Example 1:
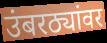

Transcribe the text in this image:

उंबरठ्यांवर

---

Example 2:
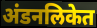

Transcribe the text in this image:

अंडनलिकेत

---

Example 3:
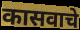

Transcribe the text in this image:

कासवाचे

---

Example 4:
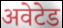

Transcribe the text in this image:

अवेटेड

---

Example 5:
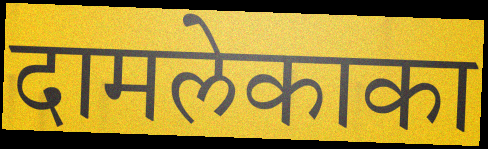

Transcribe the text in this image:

दामलेकाका